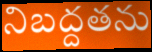
నిబద్దతను